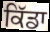
ਕਿੱਡਾ